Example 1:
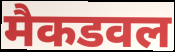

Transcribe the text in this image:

मैकडवल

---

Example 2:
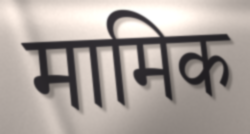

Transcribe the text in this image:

मामिक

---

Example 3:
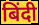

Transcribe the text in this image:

बिंदी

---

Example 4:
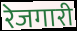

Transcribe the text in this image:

रेजगारी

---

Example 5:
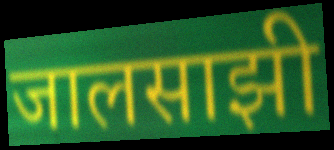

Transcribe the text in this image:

जालसाझी